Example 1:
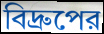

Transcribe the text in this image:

বিদ্রুপের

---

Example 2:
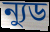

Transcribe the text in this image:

ন্যুড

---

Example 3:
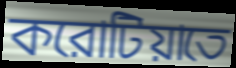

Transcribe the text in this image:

করোটিয়াতে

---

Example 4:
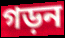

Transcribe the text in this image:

গড়ন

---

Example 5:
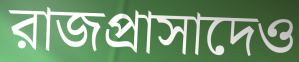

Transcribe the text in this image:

রাজপ্রাসাদেও